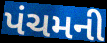
પંચમની